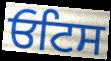
ਓਟਿਸ